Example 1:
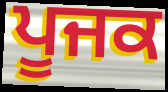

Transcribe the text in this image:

ਪੂਜਕ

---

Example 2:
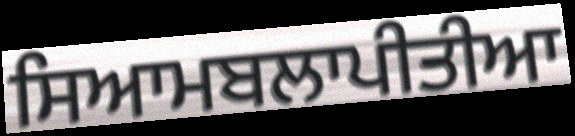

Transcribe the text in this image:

ਸਿਆਮਬਲਾਪੀਤੀਆ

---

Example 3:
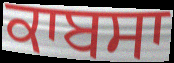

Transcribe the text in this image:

ਕਾਬਸਾ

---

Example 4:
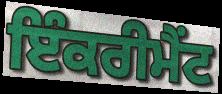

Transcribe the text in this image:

ਇੰਕਰੀਮੈਂਟ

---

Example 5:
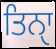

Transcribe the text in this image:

ਤਿਨੑਾ